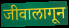
जीवालागून